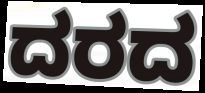
ದರದ